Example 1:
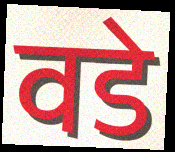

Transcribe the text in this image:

वडे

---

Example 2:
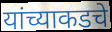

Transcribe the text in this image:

यांच्याकडचे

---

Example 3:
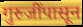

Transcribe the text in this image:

गुरुजींपासून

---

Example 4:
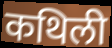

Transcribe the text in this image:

कथिली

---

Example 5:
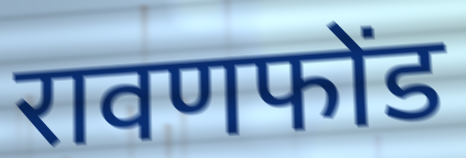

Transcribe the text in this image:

रावणफोंड